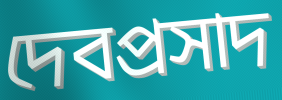
দেবপ্রসাদ